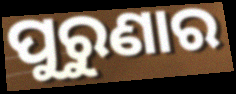
ପୁରୁଣାର